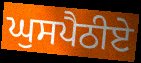
ਘੁਸਪੈਠੀਏ